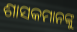
ଶାସକମାନଙ୍କୁ